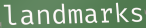
landmarks